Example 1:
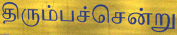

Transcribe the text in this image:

திரும்பச்சென்று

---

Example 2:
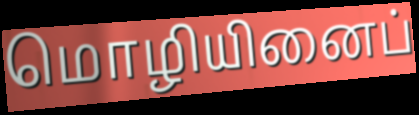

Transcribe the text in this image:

மொழியினைப்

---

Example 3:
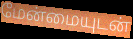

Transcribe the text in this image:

மேன்மையுடன்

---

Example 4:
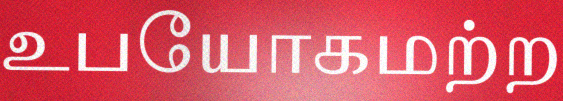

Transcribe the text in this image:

உபயோகமற்ற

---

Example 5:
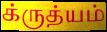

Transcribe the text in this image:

க்ருத்யம்